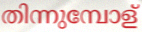
തിന്നുമ്പോള്